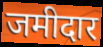
जमीदार